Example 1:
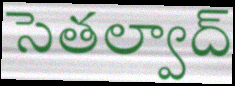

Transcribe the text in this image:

సెతల్వాద్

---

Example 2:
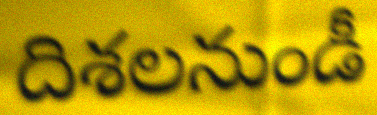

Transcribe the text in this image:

దిశలనుండీ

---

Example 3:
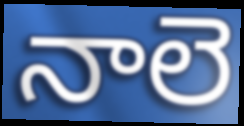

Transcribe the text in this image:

నాలె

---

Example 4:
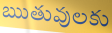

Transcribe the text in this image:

ఋతువులకు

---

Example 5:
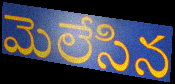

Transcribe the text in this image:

మెలేసిన